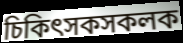
চিকিৎসকসকলক